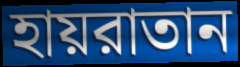
হায়রাতান